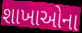
શાખાઓના